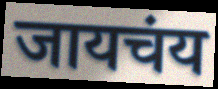
जायचंय